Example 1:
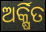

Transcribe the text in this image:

ଅର୍କ୍ଷିତ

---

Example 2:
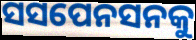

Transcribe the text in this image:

ସସପେନସନକୁ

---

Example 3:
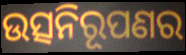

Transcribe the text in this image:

ଉତ୍ସନିରୂପଣର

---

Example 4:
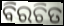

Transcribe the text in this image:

ବିରଚିତ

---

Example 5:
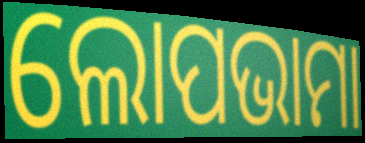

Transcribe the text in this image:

ଲୋପଭାମା